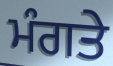
ਮੰਗਤੇ